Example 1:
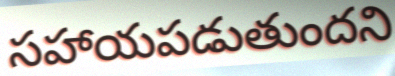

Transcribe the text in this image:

సహాయపడుతుందని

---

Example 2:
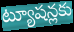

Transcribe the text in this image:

ట్యూషన్లకు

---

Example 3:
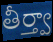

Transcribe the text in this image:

తీర్త్వా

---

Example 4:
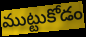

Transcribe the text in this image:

ముట్టుకోడం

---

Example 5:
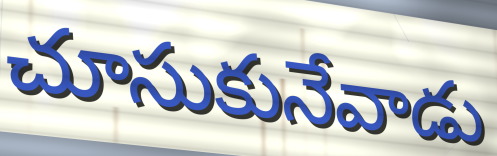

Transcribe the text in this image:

చూసుకునేవాడు